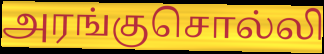
அரங்குசொல்லி